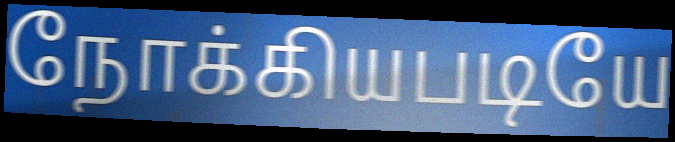
நோக்கியபடியே